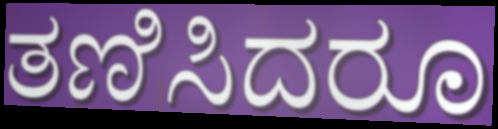
ತಣಿಸಿದರೂ